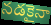
నడకైనా